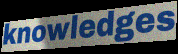
knowledges